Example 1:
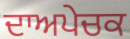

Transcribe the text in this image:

ਦਾਅਪੇਚਕ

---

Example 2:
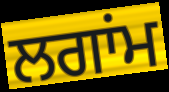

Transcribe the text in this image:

ਲਗਾਂਮ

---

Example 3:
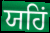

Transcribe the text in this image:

ਯਹਿਂ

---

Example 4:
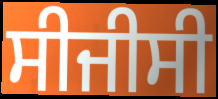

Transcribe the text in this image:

ਸੀਜੀਸੀ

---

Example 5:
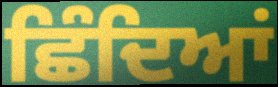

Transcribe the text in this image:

ਛਿੰਦਿਆਂ